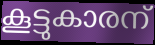
കൂട്ടുകാരന്